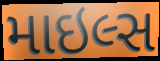
માઇલ્સ